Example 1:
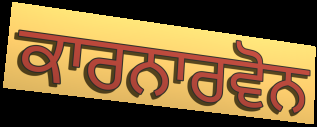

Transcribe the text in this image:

ਕਾਰਨਾਰਵੋਨ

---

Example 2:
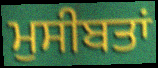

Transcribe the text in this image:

ਮੁਸੀਬਤਾਂ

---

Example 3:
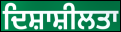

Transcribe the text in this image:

ਦਿਸ਼ਾਸ਼ੀਲਤਾ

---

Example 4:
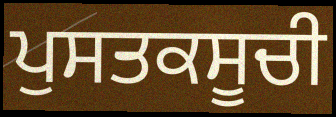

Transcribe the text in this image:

ਪੁਸਤਕਸੂਚੀ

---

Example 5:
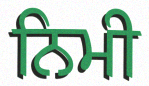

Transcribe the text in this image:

ਨਿਮੀ